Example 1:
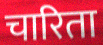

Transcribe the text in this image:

चारिता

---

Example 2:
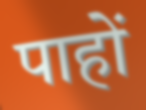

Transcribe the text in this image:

पाहों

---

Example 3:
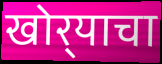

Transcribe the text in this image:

खोर्‍याचा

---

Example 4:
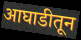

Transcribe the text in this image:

आघाडीतून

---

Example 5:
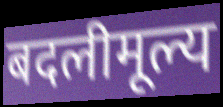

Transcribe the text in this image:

बदलीमूल्य